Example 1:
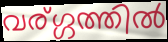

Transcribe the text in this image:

വര്ഗ്ഗത്തിൽ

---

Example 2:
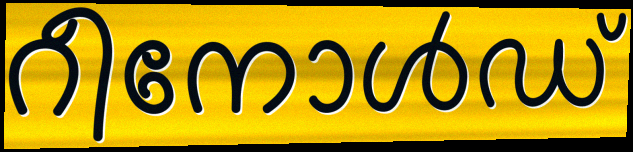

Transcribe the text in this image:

റീനോൾഡ്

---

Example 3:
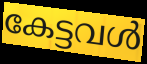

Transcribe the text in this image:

കേട്ടവൾ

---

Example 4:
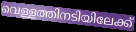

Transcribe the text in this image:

വെള്ളത്തിനടിയിലേക്ക്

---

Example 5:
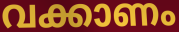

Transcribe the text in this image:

വക്കാണം